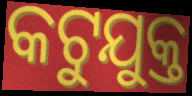
କଟୁଯୁକ୍ତ